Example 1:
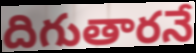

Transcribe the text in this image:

దిగుతారనే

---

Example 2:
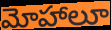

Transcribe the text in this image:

మోహాలూ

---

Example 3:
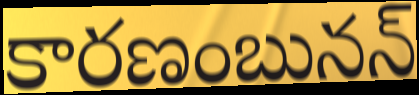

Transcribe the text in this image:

కారణంబునన్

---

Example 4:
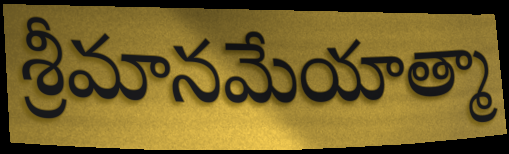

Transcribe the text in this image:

శ్రీమానమేయాత్మా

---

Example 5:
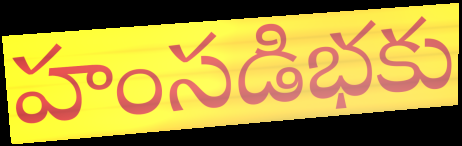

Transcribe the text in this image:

హంసడిభకు